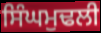
ਸਿੰਘਮੁਢਲੀ